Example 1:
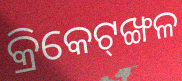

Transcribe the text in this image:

କ୍ରିକେଟ୍‌ଙ୍ଖଳ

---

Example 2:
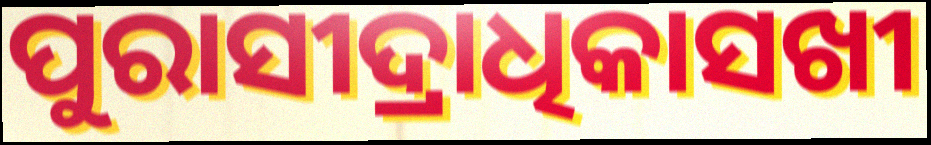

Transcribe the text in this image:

ପୁରାସୀଦ୍ରାଧିକାସଖୀ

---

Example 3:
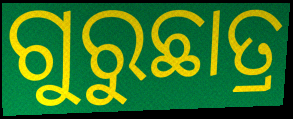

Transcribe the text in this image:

ଗୁରୁଛାତ୍ର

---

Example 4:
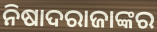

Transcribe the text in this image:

ନିଷାଦରାଜାଙ୍କର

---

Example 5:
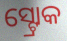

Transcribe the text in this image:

ସ୍ଟ୍ରୋକ